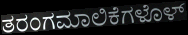
ತರಂಗಮಾಲಿಕೆಗಳೊಳ್